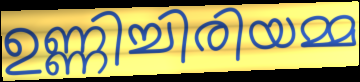
ഉണ്ണിച്ചിരിയമ്മ